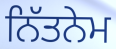
ਨਿੱਤਨੇਮ